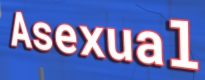
Asexual